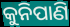
କୁନିପାଣି